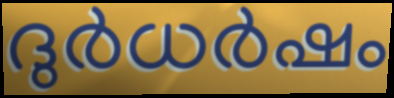
ദുർധർഷം